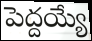
పెద్దయ్యే